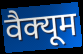
वैक्‍यूम